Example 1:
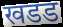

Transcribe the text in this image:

खडड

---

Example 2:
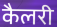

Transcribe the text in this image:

कैलरी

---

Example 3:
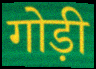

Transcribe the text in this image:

गोड़ी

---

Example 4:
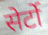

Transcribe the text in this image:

सेर्टो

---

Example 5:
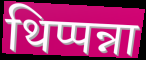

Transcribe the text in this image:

थिप्पन्ना